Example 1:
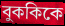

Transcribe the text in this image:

বুককিকে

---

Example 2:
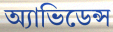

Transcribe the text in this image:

অ্যাভিডেন্স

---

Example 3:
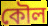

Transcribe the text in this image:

কৌল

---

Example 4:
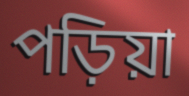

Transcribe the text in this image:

পড়িয়া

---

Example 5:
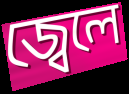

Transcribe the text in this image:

জ্বেলে